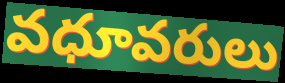
వధూవరులు